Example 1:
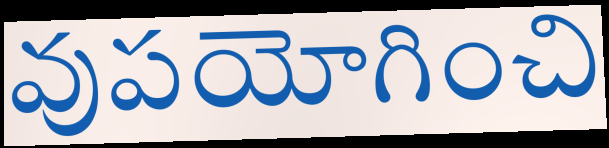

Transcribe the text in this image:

వుపయోగించి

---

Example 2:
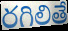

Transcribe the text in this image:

రగిలితే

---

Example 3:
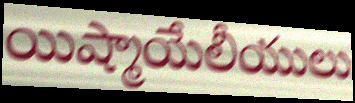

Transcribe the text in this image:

యిష్మాయేలీయులు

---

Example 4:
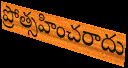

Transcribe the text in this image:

ప్రోత్సహించరాదు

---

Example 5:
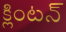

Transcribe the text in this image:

క్లింటన్